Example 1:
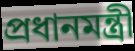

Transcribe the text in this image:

প্রধানমন্ত্রী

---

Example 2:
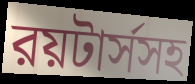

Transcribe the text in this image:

রয়টার্সসহ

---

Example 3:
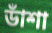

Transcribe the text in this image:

ডাঁশা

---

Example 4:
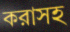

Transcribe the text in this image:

করাসহ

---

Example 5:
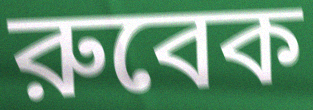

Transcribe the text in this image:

রুবেক